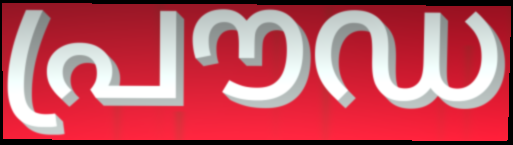
പ്രൗഡ